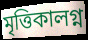
মৃত্তিকালগ্ন